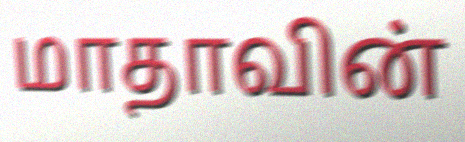
மாதாவின்